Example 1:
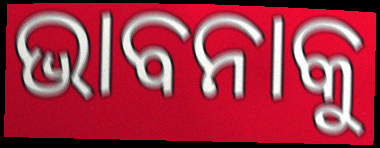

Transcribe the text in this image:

ଭାବନାକୁ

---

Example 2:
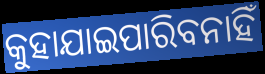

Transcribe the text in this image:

କୁହାଯାଇପାରିବନାହିଁ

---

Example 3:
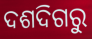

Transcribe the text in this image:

ଦଶଦିଗରୁ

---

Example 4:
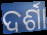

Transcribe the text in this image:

ଦର୍ଶା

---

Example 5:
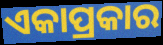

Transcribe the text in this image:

ଏକାପ୍ରକାର